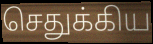
செதுக்கிய